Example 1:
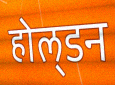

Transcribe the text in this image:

होल्डन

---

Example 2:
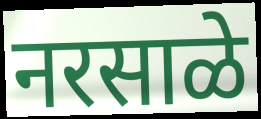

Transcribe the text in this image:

नरसाळे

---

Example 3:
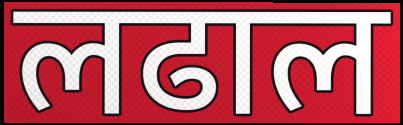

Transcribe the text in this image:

लढाल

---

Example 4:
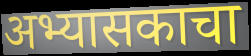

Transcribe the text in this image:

अभ्यासकाचा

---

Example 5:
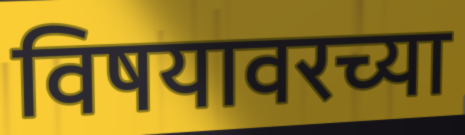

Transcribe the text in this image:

विषयावरच्या